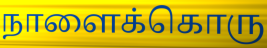
நாளைக்கொரு